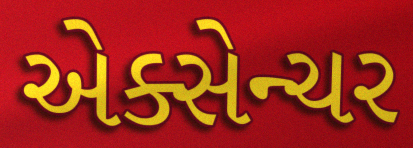
એક્સેન્ચર